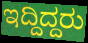
ಇದ್ದಿದ್ದರು